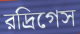
রদ্রিগেস